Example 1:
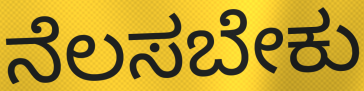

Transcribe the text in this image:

ನೆಲಸಬೇಕು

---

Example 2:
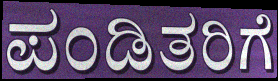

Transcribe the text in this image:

ಪಂಡಿತರಿಗೆ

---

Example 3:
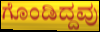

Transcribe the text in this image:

ಗೊಂಡಿದ್ದವು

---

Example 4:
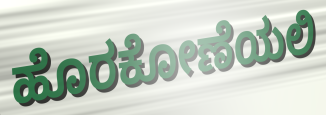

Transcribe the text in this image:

ಹೊರಕೋಣೆಯಲಿ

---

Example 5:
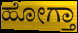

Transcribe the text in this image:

ಹೋಗ್ತಾ